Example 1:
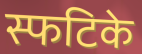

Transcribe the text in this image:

स्फटिके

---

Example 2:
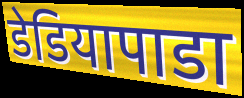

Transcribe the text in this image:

डेडियापाडा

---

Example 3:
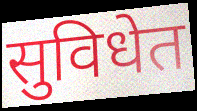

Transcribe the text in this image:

सुविधेत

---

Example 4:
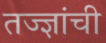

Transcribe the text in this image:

तज्ज्ञांची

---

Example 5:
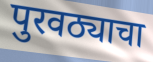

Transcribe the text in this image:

पुरवठ्याचा